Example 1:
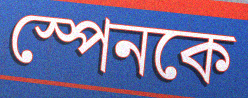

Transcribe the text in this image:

স্পেনকে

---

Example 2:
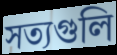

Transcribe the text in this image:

সত্যগুলি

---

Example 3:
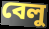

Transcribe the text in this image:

বেলু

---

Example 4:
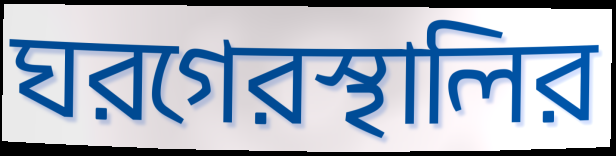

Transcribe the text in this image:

ঘরগেরস্থালির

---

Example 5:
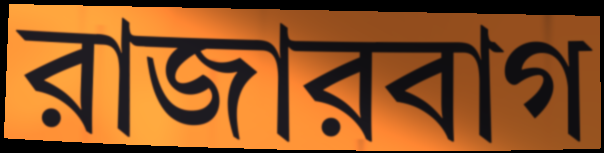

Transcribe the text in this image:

রাজারবাগ